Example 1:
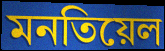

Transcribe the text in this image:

মনতিয়েল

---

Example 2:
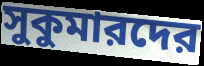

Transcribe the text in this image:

সুকুমারদের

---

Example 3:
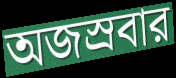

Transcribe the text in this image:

অজস্রবার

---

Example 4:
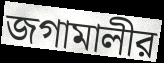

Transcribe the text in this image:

জগামালীর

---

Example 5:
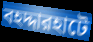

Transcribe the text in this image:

বহদ্দারহাটে